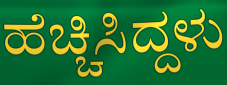
ಹೆಚ್ಚಿಸಿದ್ದಳು